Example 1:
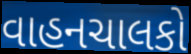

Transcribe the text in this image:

વાહનચાલકો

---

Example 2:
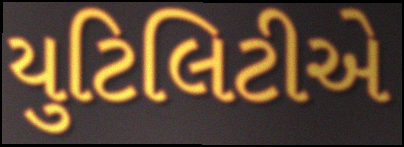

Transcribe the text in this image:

યુટિલિટીએ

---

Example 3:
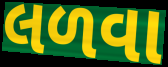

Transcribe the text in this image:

લળવા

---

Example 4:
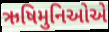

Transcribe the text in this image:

ઋષિમુનિઓએ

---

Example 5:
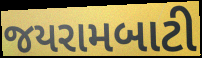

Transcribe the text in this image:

જયરામબાટી